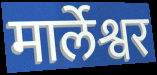
मार्लेश्वर